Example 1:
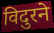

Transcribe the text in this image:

विदुरने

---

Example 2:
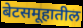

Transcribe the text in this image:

बेटसमूहातील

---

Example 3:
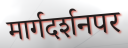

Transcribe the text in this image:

मार्गदर्शनपर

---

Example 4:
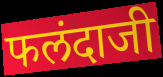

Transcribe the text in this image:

फलंदाजी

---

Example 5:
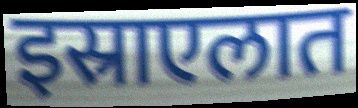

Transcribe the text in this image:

इस्राएलात